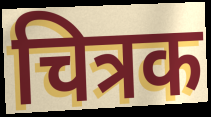
चित्रक